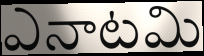
ఎనాటమి